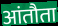
आंतौता